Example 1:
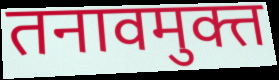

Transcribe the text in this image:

तनावमुक्त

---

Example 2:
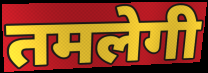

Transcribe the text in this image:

तमलेगी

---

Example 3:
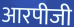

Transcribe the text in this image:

आरपीजी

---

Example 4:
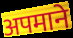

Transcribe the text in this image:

अपमाने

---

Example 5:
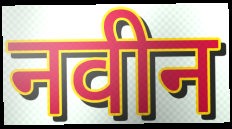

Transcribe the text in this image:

नवीन